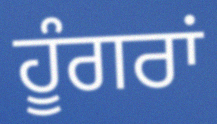
ਹੂੰਗਰਾਂ